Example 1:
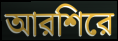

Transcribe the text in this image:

আরশিরে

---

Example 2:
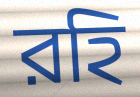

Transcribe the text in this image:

রহি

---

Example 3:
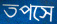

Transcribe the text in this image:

তপসে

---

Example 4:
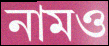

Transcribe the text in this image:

নামও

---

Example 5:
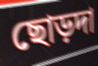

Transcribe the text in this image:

ছোড়দা